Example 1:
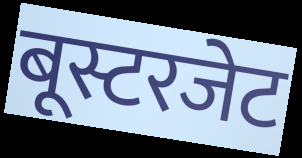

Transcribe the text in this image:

बूस्टरजेट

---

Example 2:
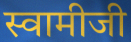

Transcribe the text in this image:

स्‍वामीजी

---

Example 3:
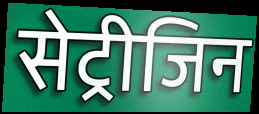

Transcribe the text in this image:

सेट्रीजिन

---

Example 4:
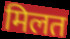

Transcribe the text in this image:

मिलत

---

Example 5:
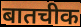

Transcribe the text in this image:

बातचीक